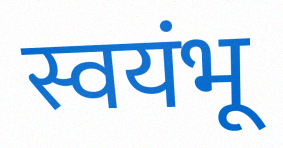
स्वयंभू